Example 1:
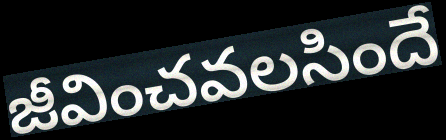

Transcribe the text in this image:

జీవించవలసిందే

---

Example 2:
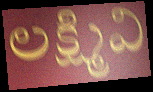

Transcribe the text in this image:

లక్ష్మివి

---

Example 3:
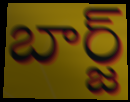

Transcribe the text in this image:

బార్జ్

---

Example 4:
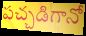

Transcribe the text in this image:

పచ్చడిగానో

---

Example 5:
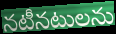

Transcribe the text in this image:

నటీనటులను